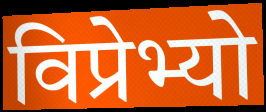
विप्रेभ्यो